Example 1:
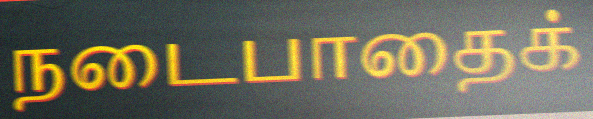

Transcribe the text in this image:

நடைபாதைக்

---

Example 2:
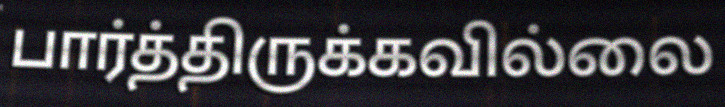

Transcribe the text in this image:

பார்த்திருக்கவில்லை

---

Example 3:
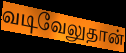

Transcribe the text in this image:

வடிவேலுதான்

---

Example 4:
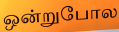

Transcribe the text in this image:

ஒன்றுபோல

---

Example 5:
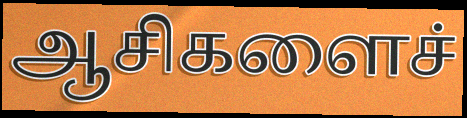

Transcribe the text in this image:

ஆசிகளைச்